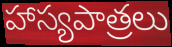
హాస్యపాత్రలు